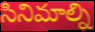
సినిమాల్ని